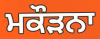
ਮਕੌੜਨਾ